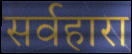
सर्वहारा